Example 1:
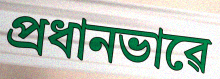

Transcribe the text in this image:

প্ৰধানভাৱে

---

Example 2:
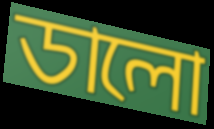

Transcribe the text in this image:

ডালো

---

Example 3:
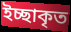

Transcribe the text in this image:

ইচ্ছাকৃত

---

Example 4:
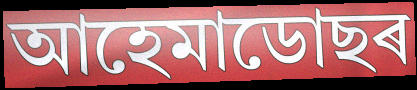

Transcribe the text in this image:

আহেমাডোছৰ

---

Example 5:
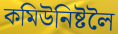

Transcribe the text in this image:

কমিউনিষ্টলৈ